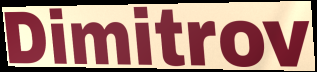
Dimitrov